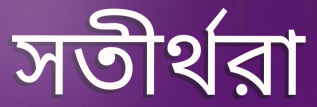
সতীর্থরা